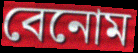
বেনোম